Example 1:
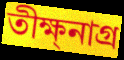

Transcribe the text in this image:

তীক্ষ্নাগ্র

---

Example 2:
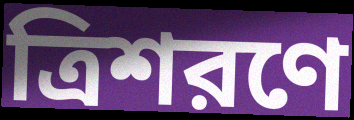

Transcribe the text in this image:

ত্রিশরণে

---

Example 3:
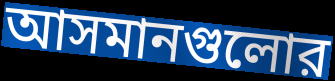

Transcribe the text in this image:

আসমানগুলোর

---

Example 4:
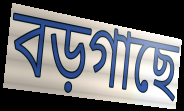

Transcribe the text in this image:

বড়গাছে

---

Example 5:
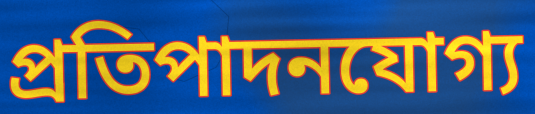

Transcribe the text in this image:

প্রতিপাদনযোগ্য